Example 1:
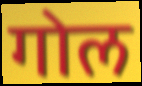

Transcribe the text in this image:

गोल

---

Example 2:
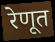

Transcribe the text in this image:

रेणूत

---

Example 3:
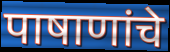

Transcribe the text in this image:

पाषाणांचे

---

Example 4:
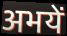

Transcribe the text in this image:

अभयें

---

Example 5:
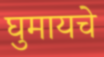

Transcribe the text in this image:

घुमायचे